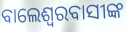
ବାଲେଶ୍ବରବାସୀଙ୍କ